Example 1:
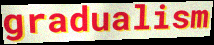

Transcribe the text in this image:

gradualism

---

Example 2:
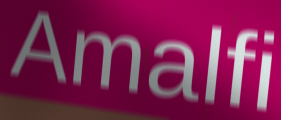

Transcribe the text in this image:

Amalfi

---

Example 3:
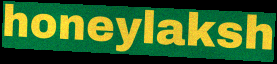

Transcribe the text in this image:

honeylaksh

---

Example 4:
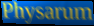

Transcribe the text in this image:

Physarum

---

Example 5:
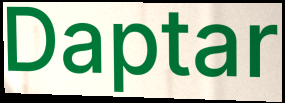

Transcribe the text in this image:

Daptar